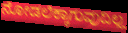
ನೋಡಲಿಕ್ಕಾಗುವುದಿಲ್ಲ